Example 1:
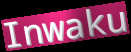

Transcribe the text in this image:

Inwaku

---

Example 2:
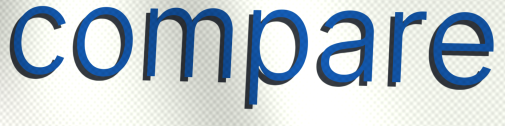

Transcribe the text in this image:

compare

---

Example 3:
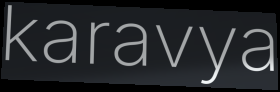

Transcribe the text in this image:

karavya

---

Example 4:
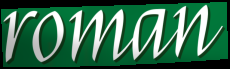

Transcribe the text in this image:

roman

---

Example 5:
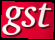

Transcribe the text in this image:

gst